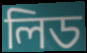
লিড